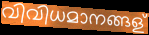
വിവിധമാനങ്ങള്